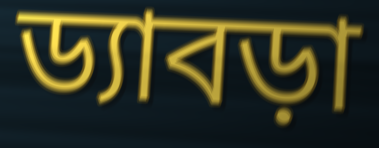
ড্যাবড়া